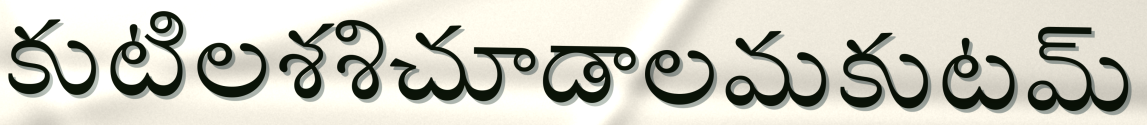
కుటిలశశిచూడాలమకుటమ్